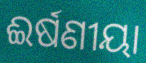
ଈର୍ଷଣୀୟା